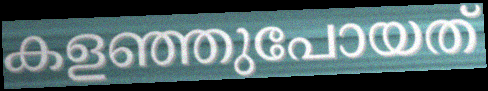
കളഞ്ഞുപോയത്